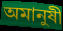
অমানুষী